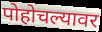
पोहोचल्यावर